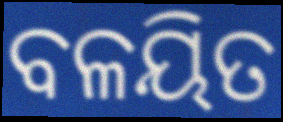
ବଳୟିତ